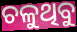
ଚଳୁଥିବୁ